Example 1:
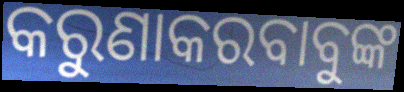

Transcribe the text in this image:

କରୁଣାକରବାବୁଙ୍କ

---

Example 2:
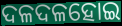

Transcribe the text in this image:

ଦଳଦଳହୋଇ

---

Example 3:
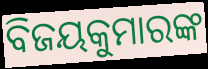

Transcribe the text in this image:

ବିଜୟକୁମାରଙ୍କ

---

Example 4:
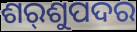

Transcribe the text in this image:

ଶର୍‌ଶୁପଦର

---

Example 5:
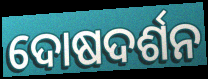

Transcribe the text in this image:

ଦୋଷଦର୍ଶନ